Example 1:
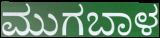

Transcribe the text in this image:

ಮುಗಬಾಳ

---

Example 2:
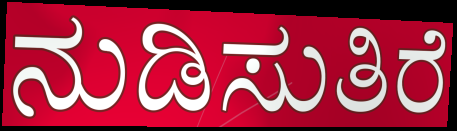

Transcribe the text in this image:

ನುಡಿಸುತಿರೆ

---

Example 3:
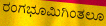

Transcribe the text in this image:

ರಂಗಭೂಮಿಗಿಂತಲೂ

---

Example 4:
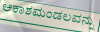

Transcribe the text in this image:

ಆಕಾಶಮಂಡಲವನ್ನು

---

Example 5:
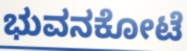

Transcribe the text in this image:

ಭುವನಕೋಟೆ